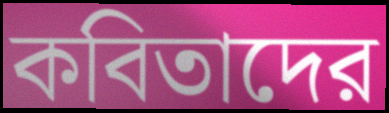
কবিতাদের